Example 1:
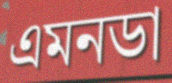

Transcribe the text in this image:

এমনডা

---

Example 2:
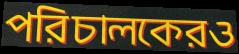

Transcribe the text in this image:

পরিচালকেরও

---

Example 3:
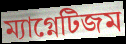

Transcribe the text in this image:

ম্যাগ্নেটিজম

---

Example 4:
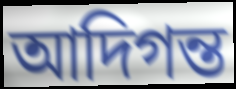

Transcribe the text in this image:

আদিগন্ত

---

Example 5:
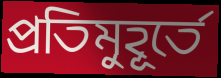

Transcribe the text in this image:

প্রতিমুহূর্তে